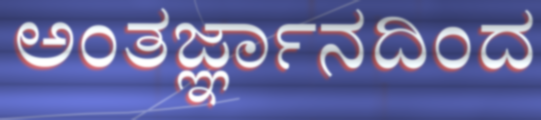
ಅಂತರ್ಜ್ಞಾನದಿಂದ